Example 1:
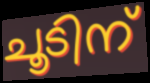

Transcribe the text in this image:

ചൂടിന്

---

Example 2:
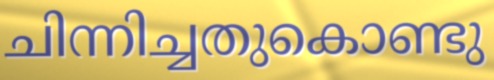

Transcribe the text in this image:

ചിന്നിച്ചതുകൊണ്ടു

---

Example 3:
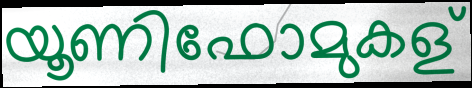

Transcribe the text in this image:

യൂണിഫോമുകള്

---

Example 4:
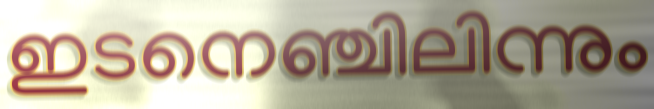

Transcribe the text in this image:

ഇടനെഞ്ചിലിന്നും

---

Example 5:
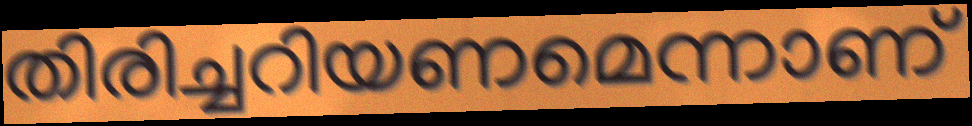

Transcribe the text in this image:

തിരിച്ചറിയണമെന്നാണ്